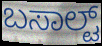
ಬಸಾಲ್ಟ್